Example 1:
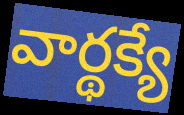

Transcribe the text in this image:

వార్థక్యే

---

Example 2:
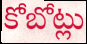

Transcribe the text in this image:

కోబోట్లు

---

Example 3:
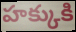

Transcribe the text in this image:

హక్కుకి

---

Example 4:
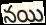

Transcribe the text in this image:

నయి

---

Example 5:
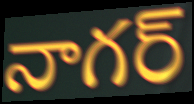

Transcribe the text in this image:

నాగర్